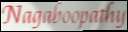
Nagaboopathy